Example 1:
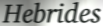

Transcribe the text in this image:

Hebrides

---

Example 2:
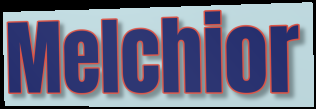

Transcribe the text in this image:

Melchior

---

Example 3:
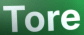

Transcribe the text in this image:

Tore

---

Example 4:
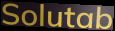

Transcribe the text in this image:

Solutab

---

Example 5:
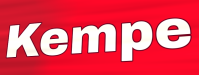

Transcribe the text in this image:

Kempe